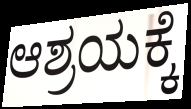
ಆಶ್ರಯಕ್ಕೆ